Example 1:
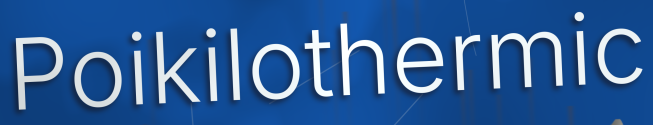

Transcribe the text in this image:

Poikilothermic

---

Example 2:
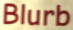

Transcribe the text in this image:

Blurb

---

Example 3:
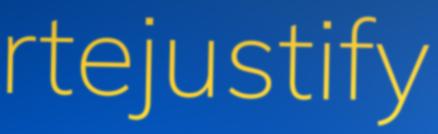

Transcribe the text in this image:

rtejustify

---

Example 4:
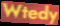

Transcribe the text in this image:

Wtedy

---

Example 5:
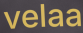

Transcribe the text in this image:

velaa